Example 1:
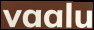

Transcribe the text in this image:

vaalu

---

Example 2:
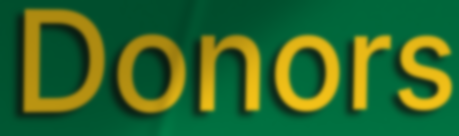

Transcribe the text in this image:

Donors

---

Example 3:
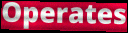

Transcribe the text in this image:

Operates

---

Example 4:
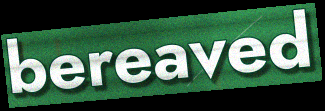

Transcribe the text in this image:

bereaved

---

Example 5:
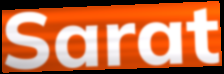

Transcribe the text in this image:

Sarat